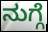
ನುಗ್ಗೆ